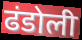
ढंडोली